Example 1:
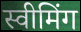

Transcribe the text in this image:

स्वीमिंग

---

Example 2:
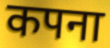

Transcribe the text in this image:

कपना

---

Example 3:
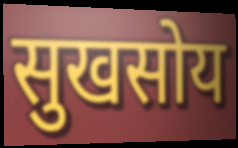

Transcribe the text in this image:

सुखसोय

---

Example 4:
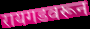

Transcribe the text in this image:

रायगडवरून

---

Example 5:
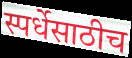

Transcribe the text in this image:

स्पर्धेसाठीच